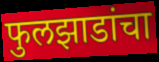
फुलझाडांचा